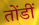
तोंडीं